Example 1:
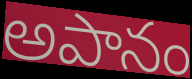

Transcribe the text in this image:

అపానం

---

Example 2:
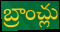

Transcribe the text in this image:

బ్రాంచ్లు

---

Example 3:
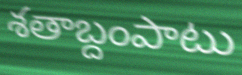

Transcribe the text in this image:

శతాబ్దంపాటు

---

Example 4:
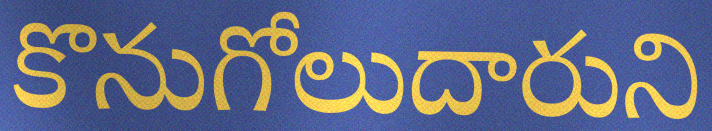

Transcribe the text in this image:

కొనుగోలుదారుని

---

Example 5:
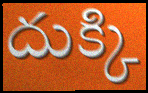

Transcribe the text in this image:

దుక్కి